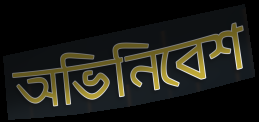
অভিনিবেশ